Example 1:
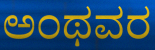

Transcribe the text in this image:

ಅಂಥವರ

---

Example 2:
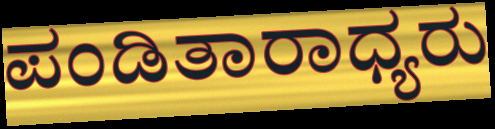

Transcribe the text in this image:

ಪಂಡಿತಾರಾಧ್ಯರು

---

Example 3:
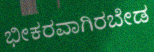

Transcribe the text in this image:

ಭೀಕರವಾಗಿರಬೇಡ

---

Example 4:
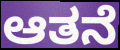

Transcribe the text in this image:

ಆತನೆ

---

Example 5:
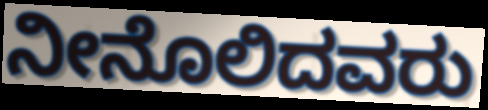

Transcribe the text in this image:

ನೀನೊಲಿದವರು